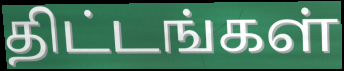
திட்டங்கள்